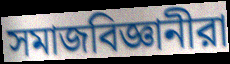
সমাজবিজ্ঞানীরা